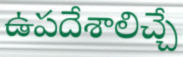
ఉపదేశాలిచ్చే